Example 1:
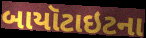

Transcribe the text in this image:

બાયૉટાઇટના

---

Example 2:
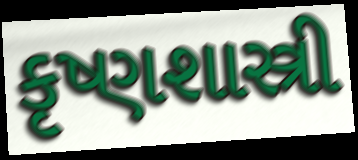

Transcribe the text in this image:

કૃષ્ણશાસ્ત્રી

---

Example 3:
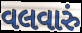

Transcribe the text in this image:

વલવારું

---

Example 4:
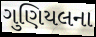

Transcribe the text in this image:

ગુણિયલના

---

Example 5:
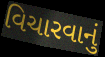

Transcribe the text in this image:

વિચારવાનું